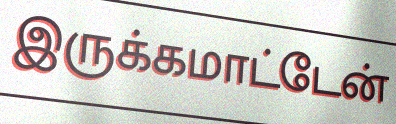
இருக்கமாட்டேன்